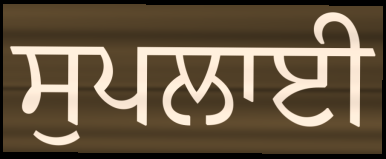
ਸੁਪਲਾਈ